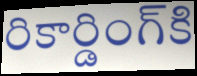
రికార్డింగ్‌కి